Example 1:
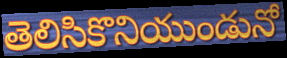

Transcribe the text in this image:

తెలిసికొనియుండునో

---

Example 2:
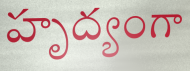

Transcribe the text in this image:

హృద్యంగా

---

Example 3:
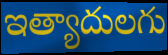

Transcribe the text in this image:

ఇత్యాదులగు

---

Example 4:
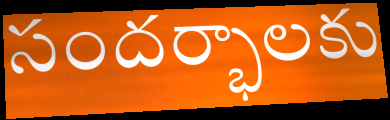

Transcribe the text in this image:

సందర్భాలకు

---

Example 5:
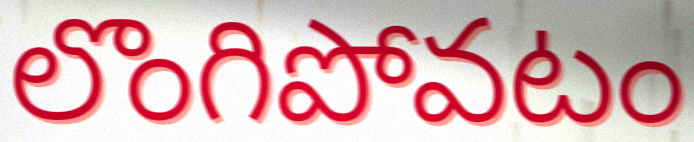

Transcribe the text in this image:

లొంగిపోవటం